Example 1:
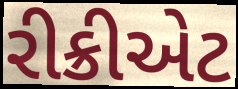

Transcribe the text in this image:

રીક્રીએટ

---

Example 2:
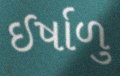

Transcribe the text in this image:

ઈર્ષાળુ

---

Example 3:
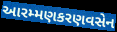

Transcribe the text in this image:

આરમ્મણકરણવસેન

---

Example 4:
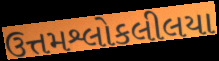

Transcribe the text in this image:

ઉત્તમશ્લોકલીલયા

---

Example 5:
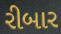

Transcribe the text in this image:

રીબાર